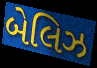
બેલિઝ